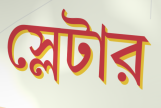
স্লেটার